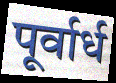
पूर्वार्ध